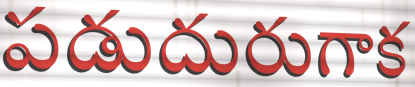
పడుదురుగాక